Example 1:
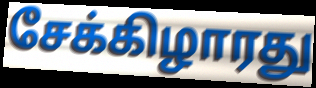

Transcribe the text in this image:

சேக்கிழாரது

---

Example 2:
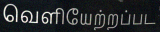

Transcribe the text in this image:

வெளியேற்றப்பட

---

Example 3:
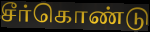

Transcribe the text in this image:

சீர்கொண்டு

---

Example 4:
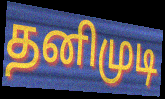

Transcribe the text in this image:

தனிமுடி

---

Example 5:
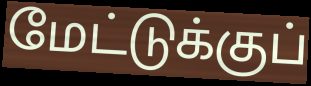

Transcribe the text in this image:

மேட்டுக்குப்